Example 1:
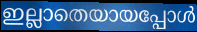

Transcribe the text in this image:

ഇല്ലാതെയായപ്പോൾ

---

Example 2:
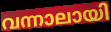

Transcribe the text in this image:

വന്നാലായി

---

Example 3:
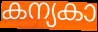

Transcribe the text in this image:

കന്യകാ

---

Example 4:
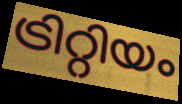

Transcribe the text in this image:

ട്രിറ്റിയം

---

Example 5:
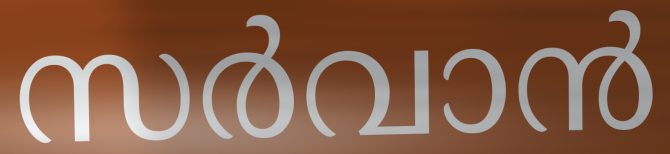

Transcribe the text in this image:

സർവാൻ